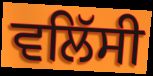
ਵਲਿੱਸੀ